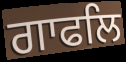
ਗਾਫਲਿ